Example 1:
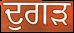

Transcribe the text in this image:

ਦੁਗੜ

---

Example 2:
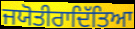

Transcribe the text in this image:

ਜਯੋਤੀਰਾਦਿੱਤਿਆ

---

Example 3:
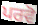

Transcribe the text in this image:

ਪਰਵੋ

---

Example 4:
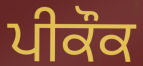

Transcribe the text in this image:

ਪੀਕੌਕ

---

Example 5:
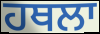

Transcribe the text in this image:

ਹਥਲਾ